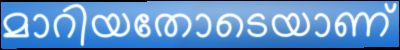
മാറിയതോടെയാണ്